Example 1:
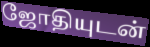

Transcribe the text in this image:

ஜோதியுடன்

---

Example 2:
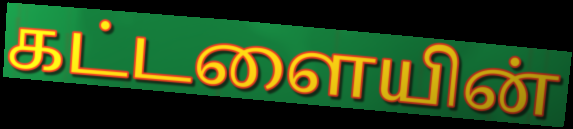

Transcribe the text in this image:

கட்டளையின்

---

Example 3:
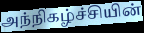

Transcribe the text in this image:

அந்நிகழ்ச்சியின்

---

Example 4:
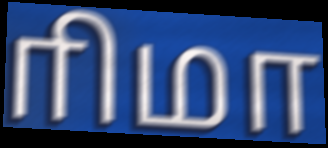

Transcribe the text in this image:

ரிமா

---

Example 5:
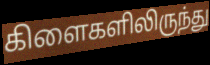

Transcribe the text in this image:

கிளைகளிலிருந்து